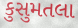
કુસુમતલા